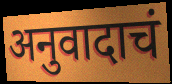
अनुवादाचं